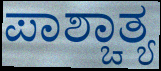
ಪಾಶ್ಚಾತ್ಯ